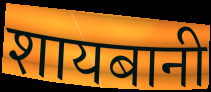
शायबानी